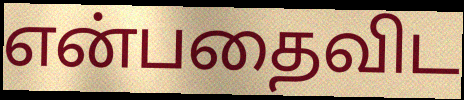
என்பதைவிட